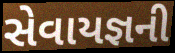
સેવાયજ્ઞની